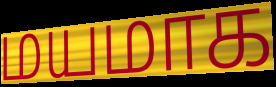
மயமாக